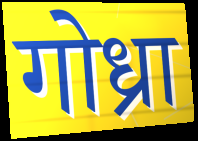
गोध्रा